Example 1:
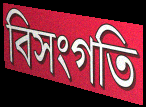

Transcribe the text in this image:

বিসংগতি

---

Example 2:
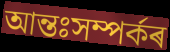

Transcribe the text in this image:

আন্তঃসম্পৰ্কৰ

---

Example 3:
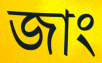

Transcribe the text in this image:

জাং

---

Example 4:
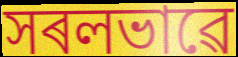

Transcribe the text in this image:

সৰলভাৱে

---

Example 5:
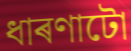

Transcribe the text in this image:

ধাৰণাটো